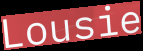
Lousie